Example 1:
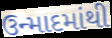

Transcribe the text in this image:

ઉન્માદમાંથી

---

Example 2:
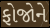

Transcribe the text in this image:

ફોજોને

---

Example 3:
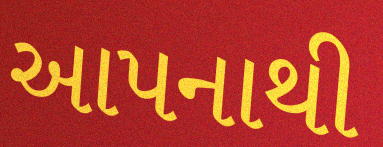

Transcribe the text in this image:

આપનાથી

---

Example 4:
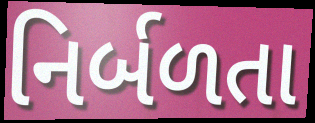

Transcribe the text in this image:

નિર્બળતા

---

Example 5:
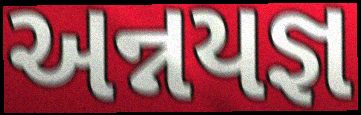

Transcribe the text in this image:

અન્નયજ્ઞ